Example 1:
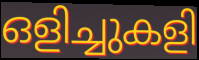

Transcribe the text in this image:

ഒളിച്ചുകളി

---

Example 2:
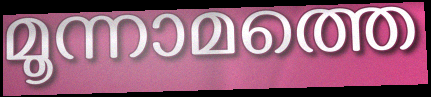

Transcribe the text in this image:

മൂന്നാമത്തെ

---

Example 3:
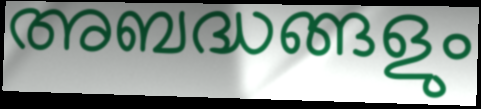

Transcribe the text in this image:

അബദ്ധങ്ങളും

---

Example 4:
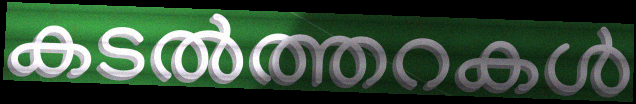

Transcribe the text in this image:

കടൽത്തറകൾ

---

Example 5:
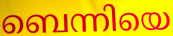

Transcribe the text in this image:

ബെന്നിയെ